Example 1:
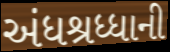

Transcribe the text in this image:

અંધશ્રધ્ધાની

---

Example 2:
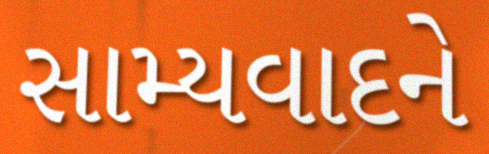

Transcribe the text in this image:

સામ્યવાદને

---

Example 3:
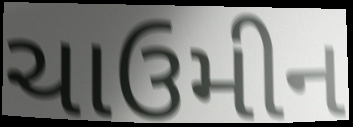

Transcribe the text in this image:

ચાઉમીન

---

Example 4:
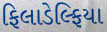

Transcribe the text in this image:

ફિલાડેલ્ફિયા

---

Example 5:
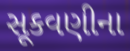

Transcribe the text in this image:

સૂકવણીના